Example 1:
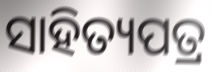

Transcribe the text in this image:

ସାହିତ୍ୟପତ୍ର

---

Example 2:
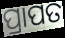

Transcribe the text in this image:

ପ୍ରାପତ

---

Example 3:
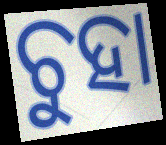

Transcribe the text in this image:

ଚୁହା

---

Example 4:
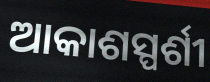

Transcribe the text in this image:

ଆକାଶସ୍ପର୍ଶୀ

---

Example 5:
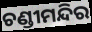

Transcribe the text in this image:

ଚଣ୍ଡୀମନ୍ଦିର